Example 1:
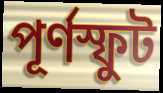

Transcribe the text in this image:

পূর্ণস্ফুট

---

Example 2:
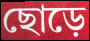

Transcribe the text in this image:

ছোড়ে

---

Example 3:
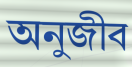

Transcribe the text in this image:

অনুজীব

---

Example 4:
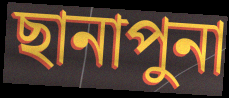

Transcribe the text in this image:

ছানাপুনা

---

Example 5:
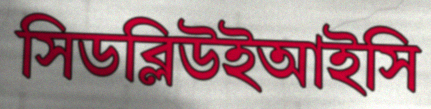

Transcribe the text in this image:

সিডব্লিউইআইসি